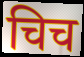
चिच